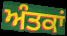
ਅੰਤਕਾਂ